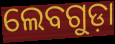
ଲେବଗୁଡ଼ା